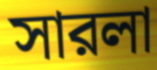
সারলা